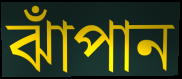
ঝাঁপান